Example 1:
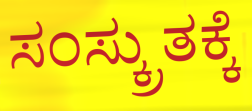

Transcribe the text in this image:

ಸಂಸ್ಕ್ರುತಕ್ಕೆ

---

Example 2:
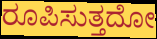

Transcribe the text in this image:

ರೂಪಿಸುತ್ತದೋ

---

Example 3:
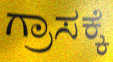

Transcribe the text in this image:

ಗ್ರಾಸಕ್ಕೆ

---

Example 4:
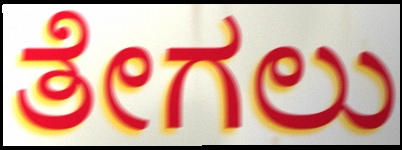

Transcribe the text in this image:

ತೇಗಲು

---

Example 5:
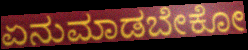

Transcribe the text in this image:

ಏನುಮಾಡಬೇಕೋ